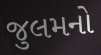
જુલમનો